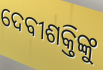
ଦେବୀଶକ୍ତିଙ୍କୁ